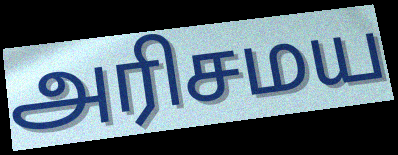
அரிசமய